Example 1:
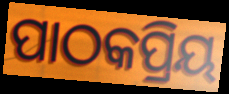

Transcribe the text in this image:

ପାଠକପ୍ରିୟ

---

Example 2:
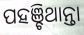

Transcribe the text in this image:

ପହଞ୍ଚିଥାନ୍ତା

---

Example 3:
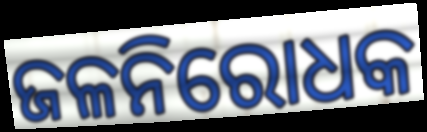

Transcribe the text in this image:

ଜଳନିରୋଧକ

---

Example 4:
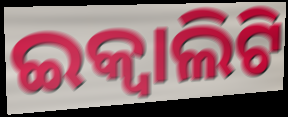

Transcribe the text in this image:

ଇକ୍ୱାଲିଟି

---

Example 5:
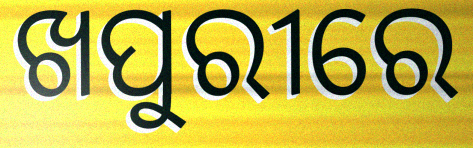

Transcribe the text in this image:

ଖପୁରୀରେ